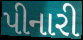
પીનારી